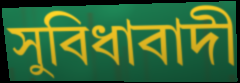
সুবিধাবাদী